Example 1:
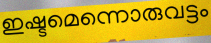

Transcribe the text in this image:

ഇഷ്ടമെന്നൊരുവട്ടം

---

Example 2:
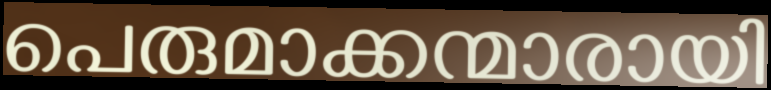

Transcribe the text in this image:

പെരുമാക്കന്മാരായി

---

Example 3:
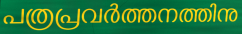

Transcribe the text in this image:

പത്രപ്രവർത്തനത്തിനു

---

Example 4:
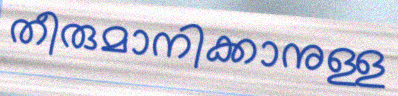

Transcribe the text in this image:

തീരുമാനിക്കാനുള്ള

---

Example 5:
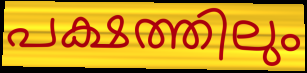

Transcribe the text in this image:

പക്ഷത്തിലും